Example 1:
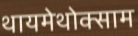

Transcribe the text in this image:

थायमेथोक्साम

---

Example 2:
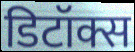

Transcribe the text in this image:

डिटॉक्स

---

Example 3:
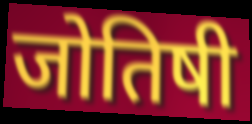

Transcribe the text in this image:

जोतिषी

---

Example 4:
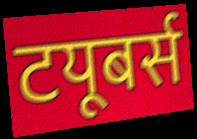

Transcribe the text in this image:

टयूबर्स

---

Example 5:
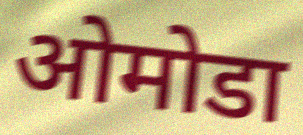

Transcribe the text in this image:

ओमोडा